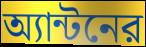
অ্যান্টনের